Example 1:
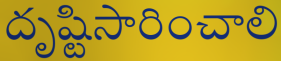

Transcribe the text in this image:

దృష్టిసారించాలి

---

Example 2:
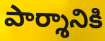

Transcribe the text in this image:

పార్శానికి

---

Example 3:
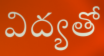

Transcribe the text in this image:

విద్యతో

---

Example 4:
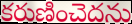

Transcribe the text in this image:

కరుణించెదను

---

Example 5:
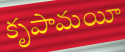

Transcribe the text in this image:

కృపామయీ